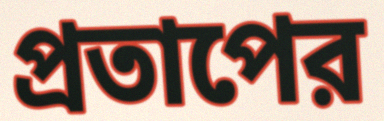
প্রতাপের